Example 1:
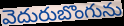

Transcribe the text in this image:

వెదురుబొంగును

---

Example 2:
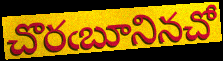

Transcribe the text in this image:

చొరఁబూనినచో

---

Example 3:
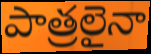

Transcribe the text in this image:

పాత్రలైనా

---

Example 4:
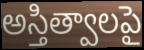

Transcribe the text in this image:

అస్తిత్వాలపై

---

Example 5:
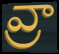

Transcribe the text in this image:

వ్రా